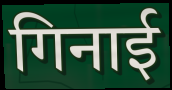
गिनाई